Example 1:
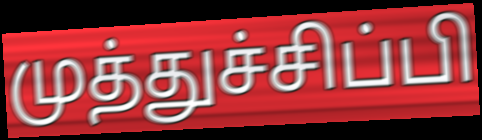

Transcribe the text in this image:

முத்துச்சிப்பி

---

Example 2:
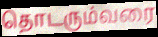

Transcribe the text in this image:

தொடரும்வரை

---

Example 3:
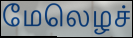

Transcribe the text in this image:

மேலெழச்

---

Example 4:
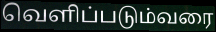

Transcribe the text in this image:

வெளிப்படும்வரை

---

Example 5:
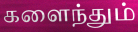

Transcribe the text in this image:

களைந்தும்